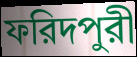
ফরিদপুরী